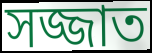
সজ্জাত